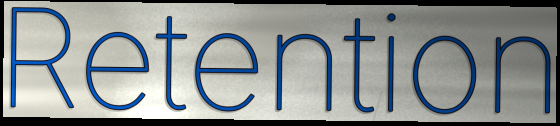
Retention